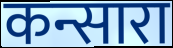
कन्सारा